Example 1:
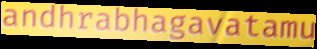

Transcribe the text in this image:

andhrabhagavatamu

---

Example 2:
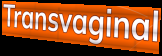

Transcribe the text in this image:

Transvaginal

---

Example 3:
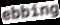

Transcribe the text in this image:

ebbing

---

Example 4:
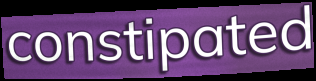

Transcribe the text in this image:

constipated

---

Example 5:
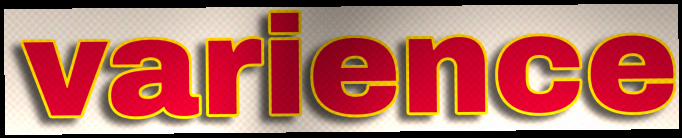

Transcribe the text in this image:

varience